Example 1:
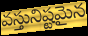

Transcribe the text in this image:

వస్తునిష్టమైన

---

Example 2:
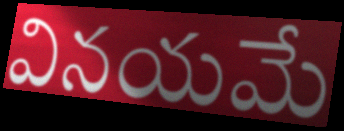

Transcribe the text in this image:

వినయమే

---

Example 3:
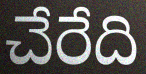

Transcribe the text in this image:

చేరేది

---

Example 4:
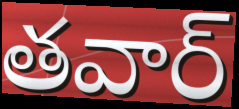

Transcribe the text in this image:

తవార్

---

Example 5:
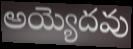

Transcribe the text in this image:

అయ్యెదవు